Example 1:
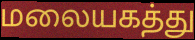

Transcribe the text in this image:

மலையகத்து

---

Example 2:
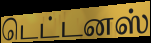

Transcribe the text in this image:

டெட்டனஸ்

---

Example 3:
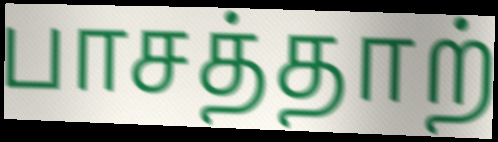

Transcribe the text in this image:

பாசத்தாற்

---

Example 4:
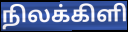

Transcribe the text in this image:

நிலக்கிளி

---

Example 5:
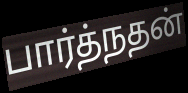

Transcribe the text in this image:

பார்த்நதன்